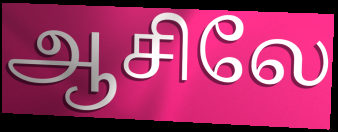
ஆசிலே